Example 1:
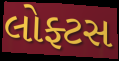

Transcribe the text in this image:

લોફ્ટસ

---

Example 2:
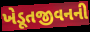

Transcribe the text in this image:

ખેડૂતજીવનની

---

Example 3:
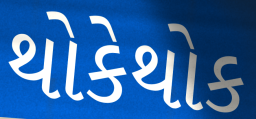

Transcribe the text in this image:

થોકેથોક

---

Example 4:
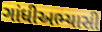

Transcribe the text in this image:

ગાંધીઅભ્યાસી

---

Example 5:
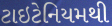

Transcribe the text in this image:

ટાઇટેનિયમથી